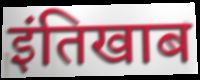
इंतिखाब